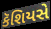
કૅશિયસે